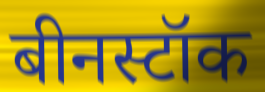
बीनस्टॉक